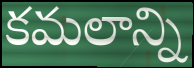
కమలాన్ని